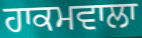
ਹਾਕਮਵਾਲਾ